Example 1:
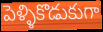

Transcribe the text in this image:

పెళ్ళికొడుకుగా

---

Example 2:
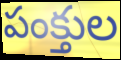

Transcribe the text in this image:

పంక్తుల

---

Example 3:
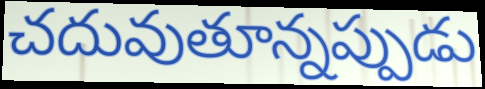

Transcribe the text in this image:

చదువుతూన్నప్పుడు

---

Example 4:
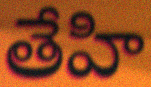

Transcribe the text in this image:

తేహి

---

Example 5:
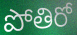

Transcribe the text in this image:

పోతిరో